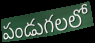
పండుగలలో